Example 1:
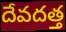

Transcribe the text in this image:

దేవదత్త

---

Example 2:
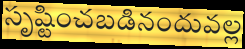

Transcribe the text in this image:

సృష్టించబడినందువల్ల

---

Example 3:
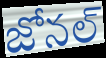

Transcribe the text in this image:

జోనల్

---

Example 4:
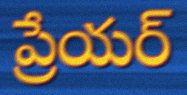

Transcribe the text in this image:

ప్రేయర్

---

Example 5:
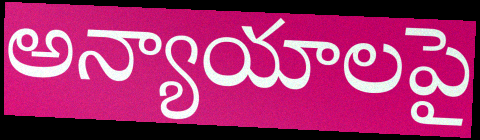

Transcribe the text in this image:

అన్యాయాలపై